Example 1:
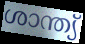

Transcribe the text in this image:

ശാന്ത്യ്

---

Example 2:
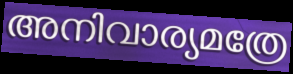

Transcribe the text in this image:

അനിവാര്യമത്രേ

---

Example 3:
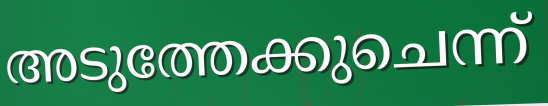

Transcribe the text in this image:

അടുത്തേക്കുചെന്ന്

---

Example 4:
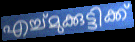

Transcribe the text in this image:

എച്ച്മുക്കുട്ടിക്ക്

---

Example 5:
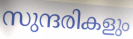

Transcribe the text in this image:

സുന്ദരികളും